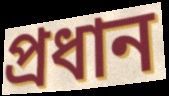
প্ৰধান